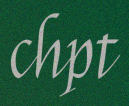
chpt